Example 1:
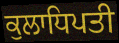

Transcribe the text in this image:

ਕੁਲਾਧਿਪਤੀ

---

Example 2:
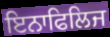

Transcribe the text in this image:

ਇਨਾਫਿਲਿਜ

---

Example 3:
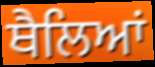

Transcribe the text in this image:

ਥੈਲਿਆਂ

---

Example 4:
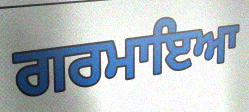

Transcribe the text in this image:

ਗਰਮਾਇਆ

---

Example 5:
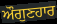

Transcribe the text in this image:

ਔਗੁਣਹਾਰ